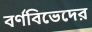
বর্ণবিভেদের